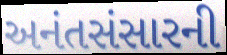
અનંતસંસારની